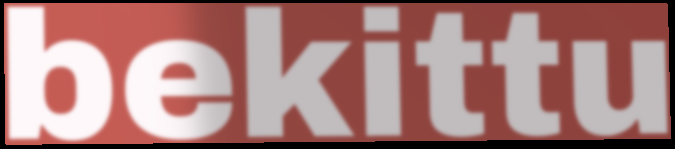
bekittu